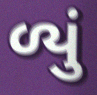
ળ્યું